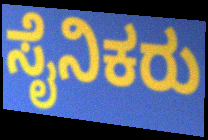
ಸೈನಿಕರು